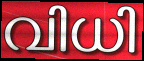
വിധി